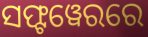
ସଫ୍ଟୱେରରେ